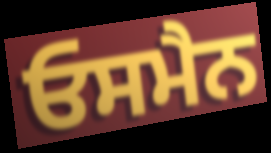
ਓਸਮੈਨ